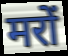
मरों